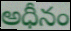
అధీనం